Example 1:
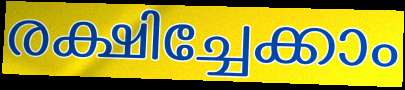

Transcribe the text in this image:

രക്ഷിച്ചേക്കാം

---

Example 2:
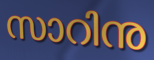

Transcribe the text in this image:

സാറിനു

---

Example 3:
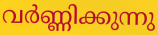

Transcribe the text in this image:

വർണ്ണിക്കുന്നു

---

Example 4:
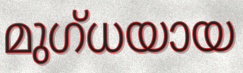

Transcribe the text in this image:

മുഗ്ധയായ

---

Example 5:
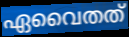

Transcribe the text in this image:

ഏവൈതത്